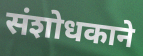
संशोधकाने